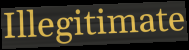
Illegitimate